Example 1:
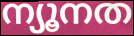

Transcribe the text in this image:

ന്യൂനത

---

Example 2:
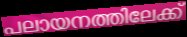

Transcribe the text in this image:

പലായനത്തിലേക്ക്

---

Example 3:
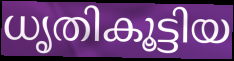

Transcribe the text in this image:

ധൃതികൂട്ടിയ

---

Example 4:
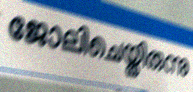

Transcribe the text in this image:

ജോലിചെയ്തിരുന്നു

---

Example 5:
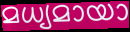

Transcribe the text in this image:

മധ്യമായാ